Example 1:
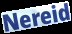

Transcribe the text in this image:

Nereid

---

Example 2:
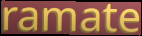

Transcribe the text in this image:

ramate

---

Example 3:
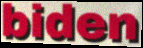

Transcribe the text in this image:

biden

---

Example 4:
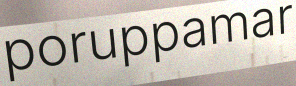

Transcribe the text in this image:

poruppamar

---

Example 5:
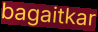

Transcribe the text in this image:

bagaitkar